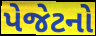
પેજેટનો